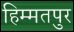
हिम्मतपुर